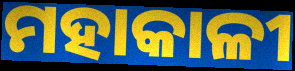
ମହାକାଳୀ